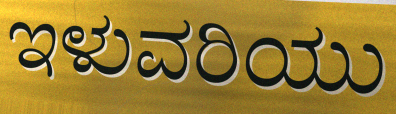
ಇಳುವರಿಯು